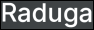
Raduga